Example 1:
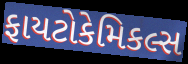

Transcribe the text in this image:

ફાયટોકેમિકલ્સ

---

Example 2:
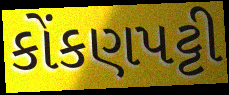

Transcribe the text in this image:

કોંકણપટ્ટી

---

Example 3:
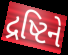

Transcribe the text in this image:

દ્રષ્ટિને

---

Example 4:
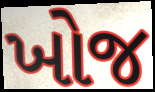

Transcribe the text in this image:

ખોજ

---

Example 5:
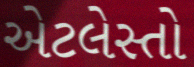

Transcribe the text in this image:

એટલેસ્તો